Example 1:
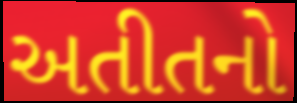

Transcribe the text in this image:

અતીતનો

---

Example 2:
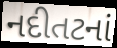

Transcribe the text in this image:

નદીતટનાં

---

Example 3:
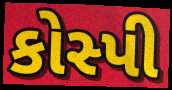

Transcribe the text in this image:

કોસ્પી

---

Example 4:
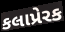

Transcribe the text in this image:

કલાપ્રેરક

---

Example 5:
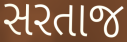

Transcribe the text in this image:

સરતાજ